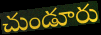
చుండూరు